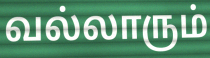
வல்லாரும்